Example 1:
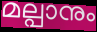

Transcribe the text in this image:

മല്പാനും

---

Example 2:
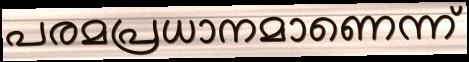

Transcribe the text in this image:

പരമപ്രധാനമാണെന്ന്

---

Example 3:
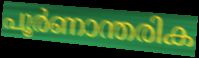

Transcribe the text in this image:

പൂർണാന്തരിക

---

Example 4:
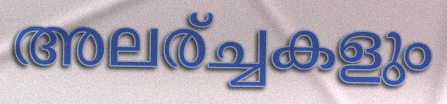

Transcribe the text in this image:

അലര്ച്ചകളും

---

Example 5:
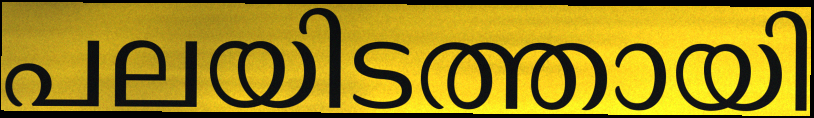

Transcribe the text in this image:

പലയിടത്തായി